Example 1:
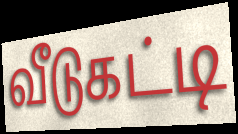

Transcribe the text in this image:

வீடுகட்டி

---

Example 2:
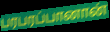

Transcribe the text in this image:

பரபரப்பானான்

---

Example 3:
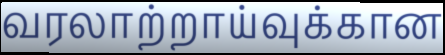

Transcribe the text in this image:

வரலாற்றாய்வுக்கான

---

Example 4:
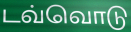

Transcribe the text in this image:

டவ்வொடு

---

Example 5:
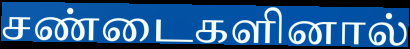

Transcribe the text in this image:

சண்டைகளினால்